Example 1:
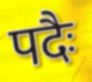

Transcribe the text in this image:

पदैः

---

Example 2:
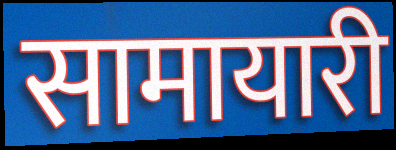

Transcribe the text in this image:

सामायारी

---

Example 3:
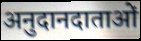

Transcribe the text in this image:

अनुदानदाताओं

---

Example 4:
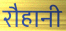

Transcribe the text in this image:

रौहानी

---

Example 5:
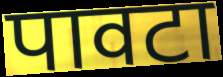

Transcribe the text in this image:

पावटा